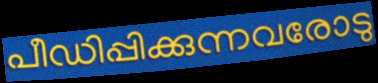
പീഡിപ്പിക്കുന്നവരോടു